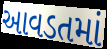
આવડતમાં